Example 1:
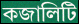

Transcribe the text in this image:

কজালিটি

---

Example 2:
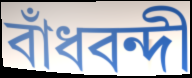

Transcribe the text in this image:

বাঁধবন্দী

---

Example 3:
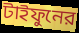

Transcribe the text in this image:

টাইফুনের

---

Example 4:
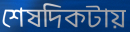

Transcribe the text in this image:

শেষদিকটায়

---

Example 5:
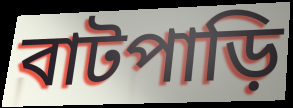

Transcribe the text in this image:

বাটপাড়ি